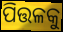
ପିତ୍ତଳକୁ